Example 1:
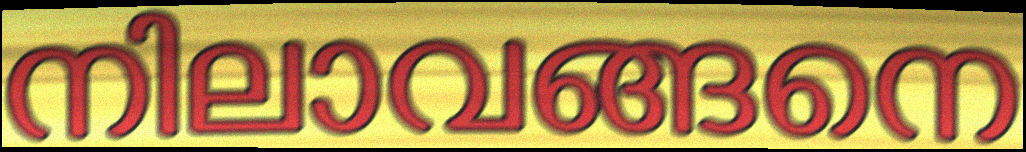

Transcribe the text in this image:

നിലാവങ്ങനെ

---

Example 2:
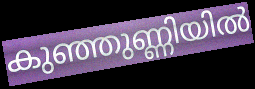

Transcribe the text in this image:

കുഞ്ഞുണ്ണിയിൽ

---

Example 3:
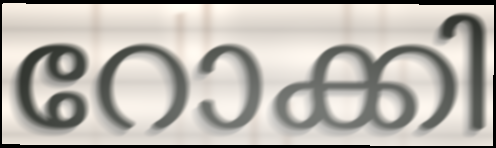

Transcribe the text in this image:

റോക്കി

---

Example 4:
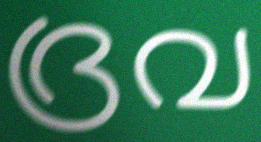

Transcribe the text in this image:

ദ്രവ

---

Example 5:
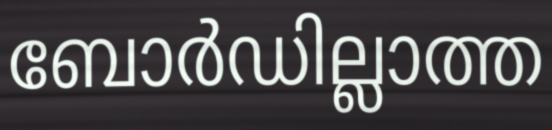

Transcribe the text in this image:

ബോർഡില്ലാത്ത